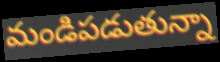
మండిపడుతున్నా